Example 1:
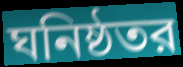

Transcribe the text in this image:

ঘনিষ্ঠতর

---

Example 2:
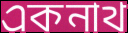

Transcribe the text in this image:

একনাথ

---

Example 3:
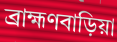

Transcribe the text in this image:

ব্রাহ্মণবাড়িয়া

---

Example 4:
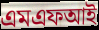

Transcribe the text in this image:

এমএফআই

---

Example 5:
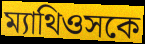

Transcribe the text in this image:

ম্যাথিওসকে